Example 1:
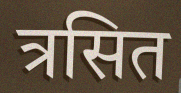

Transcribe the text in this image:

त्रसित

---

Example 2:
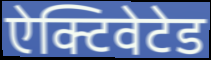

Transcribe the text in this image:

ऐक्टिवेटेड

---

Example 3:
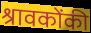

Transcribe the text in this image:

श्रावकोंकी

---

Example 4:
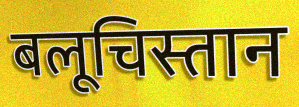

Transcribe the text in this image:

बलूचिस्तान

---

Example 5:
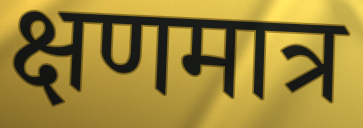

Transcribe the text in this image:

क्षणमात्र